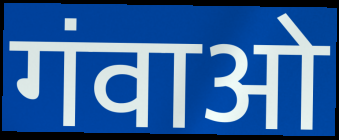
गंवाओ